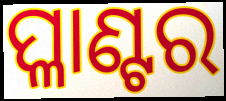
ପ୍ଳାଣ୍ଟର